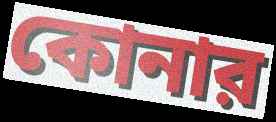
কোনার